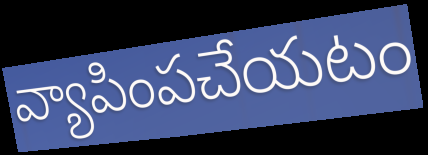
వ్యాపింపచేయటం